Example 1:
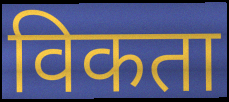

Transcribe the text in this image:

विकता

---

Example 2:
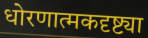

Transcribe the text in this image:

धोरणात्मकदृष्ट्या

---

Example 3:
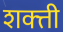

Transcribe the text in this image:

शक्त्ती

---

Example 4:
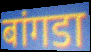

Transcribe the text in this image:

बांगडा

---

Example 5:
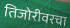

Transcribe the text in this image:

तिजोरीवरचा